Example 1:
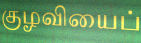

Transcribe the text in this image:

குழவியைப்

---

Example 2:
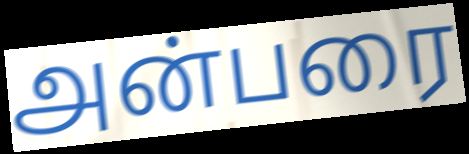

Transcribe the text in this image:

அன்பரை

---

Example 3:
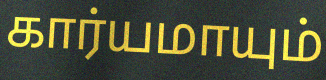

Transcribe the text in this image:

கார்யமாயும்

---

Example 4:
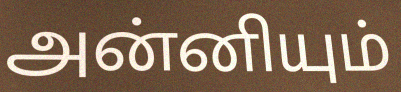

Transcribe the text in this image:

அன்னியும்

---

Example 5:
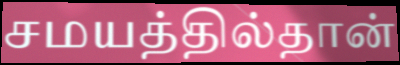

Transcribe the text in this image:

சமயத்தில்தான்